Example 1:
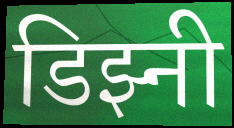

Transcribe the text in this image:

डिझ्नी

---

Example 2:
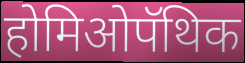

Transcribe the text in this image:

होमिओपॅथिक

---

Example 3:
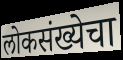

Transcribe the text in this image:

लोकसंख्येचा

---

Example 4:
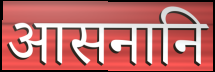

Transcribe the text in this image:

आसनानि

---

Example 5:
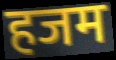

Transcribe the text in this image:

हजम